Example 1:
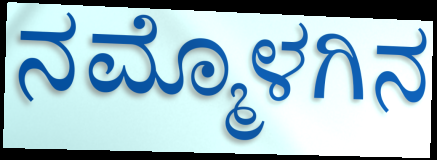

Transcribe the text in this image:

ನಮ್ಮೊಳಗಿನ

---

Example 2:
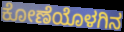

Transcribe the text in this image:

ಕೋಣೆಯೊಳಗಿನ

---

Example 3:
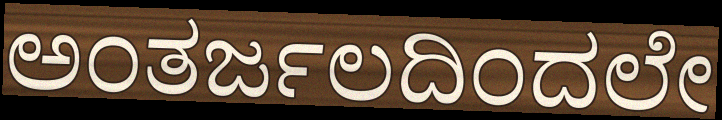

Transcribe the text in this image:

ಅಂತರ್ಜಲದಿಂದಲೇ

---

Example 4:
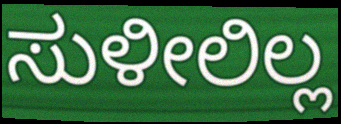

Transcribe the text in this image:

ಸುಳೀಲಿಲ್ಲ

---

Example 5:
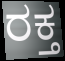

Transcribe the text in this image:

ರಕ್ತ